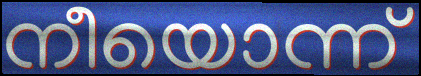
നീയൊന്ന്